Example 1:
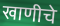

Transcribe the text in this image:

खाणीचे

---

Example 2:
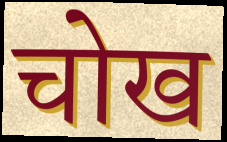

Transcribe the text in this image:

चोख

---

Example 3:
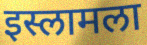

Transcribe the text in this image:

इस्लामला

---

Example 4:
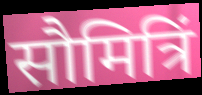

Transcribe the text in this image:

सौमित्रिं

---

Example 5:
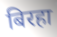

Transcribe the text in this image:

बिरहा